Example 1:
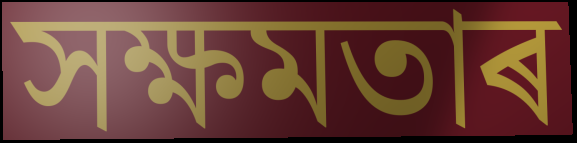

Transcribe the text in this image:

সক্ষমতাৰ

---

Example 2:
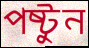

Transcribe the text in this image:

পষ্টুন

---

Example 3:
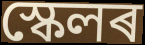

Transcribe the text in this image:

স্কেলৰ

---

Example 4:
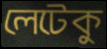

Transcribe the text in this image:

লেটেকু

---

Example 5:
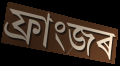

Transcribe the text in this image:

ফ্ৰাংজৰ